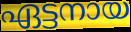
ഏട്ടനായ